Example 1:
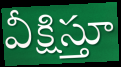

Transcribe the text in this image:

వీక్షిస్తూ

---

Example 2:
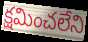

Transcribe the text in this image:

క్షమించలేని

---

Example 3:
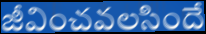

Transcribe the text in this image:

జీవించవలసిందే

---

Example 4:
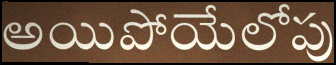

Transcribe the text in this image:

అయిపోయేలోపు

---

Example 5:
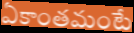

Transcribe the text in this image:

ఏకాంతమంటే